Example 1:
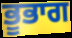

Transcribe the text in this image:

ਭੂਭਾਗ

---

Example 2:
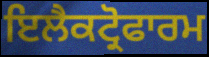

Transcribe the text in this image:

ਇਲੈਕਟ੍ਰੋਫਾਰਮ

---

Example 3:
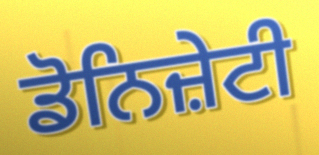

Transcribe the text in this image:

ਡੋਨਿਜ਼ੇਟੀ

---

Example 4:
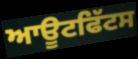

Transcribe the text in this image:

ਆਊਟਫਿੱਟਸ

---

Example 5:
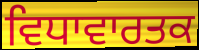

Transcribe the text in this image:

ਵਿਧਾਵਾਰਤਕ